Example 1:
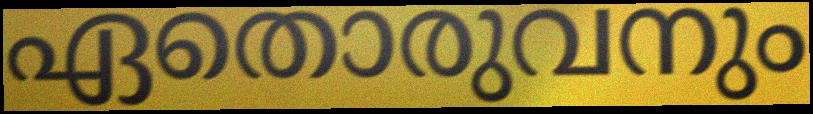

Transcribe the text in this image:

ഏതൊരുവനും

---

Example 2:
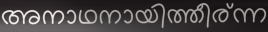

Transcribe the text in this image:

അനാഥനായിത്തീര്ന്ന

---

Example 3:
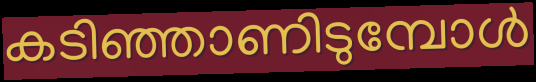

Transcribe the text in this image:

കടിഞ്ഞാണിടുമ്പോൾ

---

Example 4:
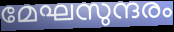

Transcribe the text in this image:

മേഘസുന്ദരം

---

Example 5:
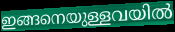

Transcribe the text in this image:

ഇങ്ങനെയുള്ളവയിൽ